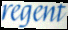
regent